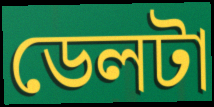
ডেলটা